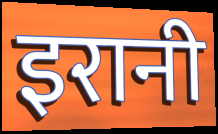
इरानी